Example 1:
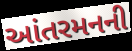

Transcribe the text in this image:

આંતરમનની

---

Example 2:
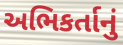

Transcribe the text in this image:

અભિકર્તાનું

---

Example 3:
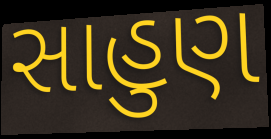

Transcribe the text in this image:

સાહુણ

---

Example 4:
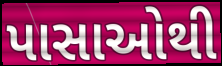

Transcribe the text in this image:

પાસાઓથી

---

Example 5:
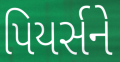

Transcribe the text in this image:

પિયર્સને